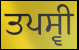
ਤਪਸ੍ਵੀ